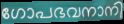
ഗോപഭവനാനി